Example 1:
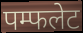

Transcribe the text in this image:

पम्फलेट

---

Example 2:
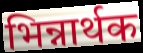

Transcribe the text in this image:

भिन्नार्थक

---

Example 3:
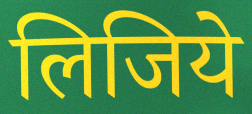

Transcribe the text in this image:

लिजिये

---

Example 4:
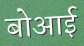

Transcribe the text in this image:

बोआई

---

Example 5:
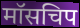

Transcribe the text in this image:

मॉसचिप